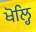
ਖੋਲ੍ਹਿ